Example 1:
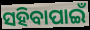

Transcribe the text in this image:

ସହିବାପାଇଁ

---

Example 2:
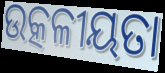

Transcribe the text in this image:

ଉତ୍କଳୀୟତା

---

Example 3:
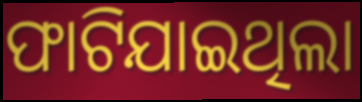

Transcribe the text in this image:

ଫାଟିଯାଇଥିଲା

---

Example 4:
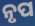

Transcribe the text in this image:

ନୃପ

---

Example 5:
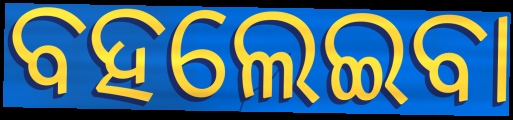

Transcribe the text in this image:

ବହଲେଇବା